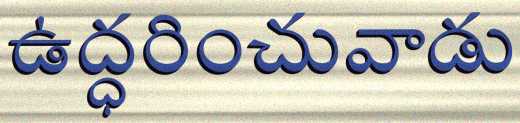
ఉద్ధరించువాడు